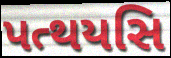
પત્થયસિ